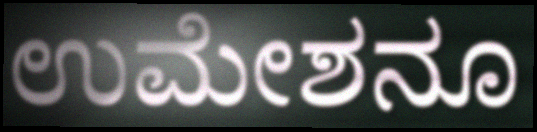
ಉಮೇಶನೂ